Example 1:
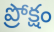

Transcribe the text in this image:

ప్రోక్షం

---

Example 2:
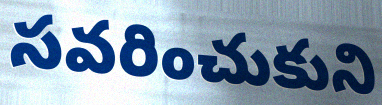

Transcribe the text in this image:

సవరించుకుని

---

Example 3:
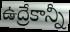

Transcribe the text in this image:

ఉద్రేకాన్నీ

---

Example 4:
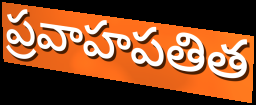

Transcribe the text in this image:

ప్రవాహపతిత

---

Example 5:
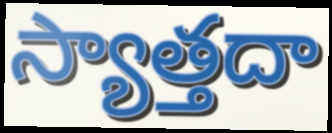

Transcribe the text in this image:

స్యాత్తదా